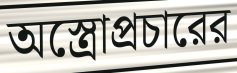
অস্ত্রোপ্রচারের